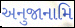
અનુજાનામિ